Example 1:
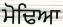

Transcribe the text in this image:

ਮੋਢਿਆ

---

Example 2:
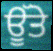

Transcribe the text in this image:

ਊੱਤੇ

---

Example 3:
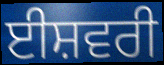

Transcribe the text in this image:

ਈਸ਼ਵਰੀ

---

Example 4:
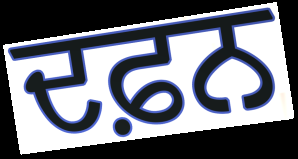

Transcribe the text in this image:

ਦਫ਼ਨ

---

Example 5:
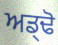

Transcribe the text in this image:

ਅਡ੍ਢੋ